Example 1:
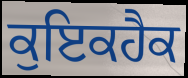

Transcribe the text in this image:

ਕੁਇਕਹੈਕ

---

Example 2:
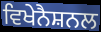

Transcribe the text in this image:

ਵਿਖੇਨੈਸ਼ਨਲ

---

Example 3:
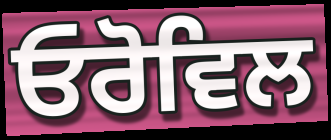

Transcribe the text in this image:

ਓਰੋਵਿਲ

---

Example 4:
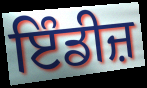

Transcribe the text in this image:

ਇੰਡੀਜ਼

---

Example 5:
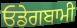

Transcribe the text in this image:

ਓਡੇਗਬਾਮੀ